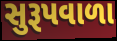
સુરૂપવાળા